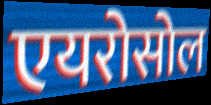
एयरोसोल